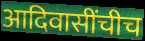
आदिवासींचीच